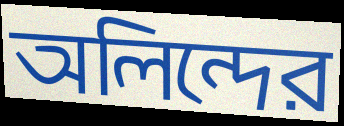
অলিন্দের